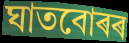
ঘাতবোৰৰ